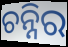
ଚନ୍ନିର